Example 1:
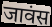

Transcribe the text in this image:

जावंस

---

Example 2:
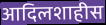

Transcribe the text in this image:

आदिलशाहीस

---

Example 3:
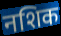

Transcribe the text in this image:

नशिक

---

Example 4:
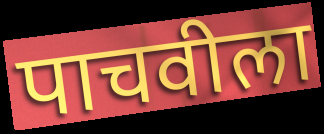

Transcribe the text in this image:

पाचवीला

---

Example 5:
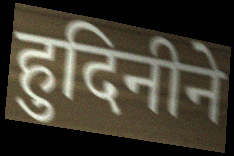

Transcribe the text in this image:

हुदिनीने